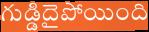
గుడ్డిదైపోయింది